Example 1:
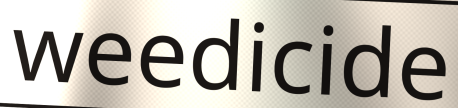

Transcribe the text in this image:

weedicide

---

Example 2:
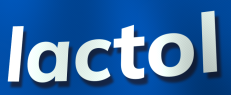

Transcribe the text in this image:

lactol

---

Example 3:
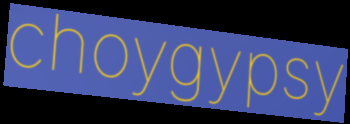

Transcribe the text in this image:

choygypsy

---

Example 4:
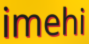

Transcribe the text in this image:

imehi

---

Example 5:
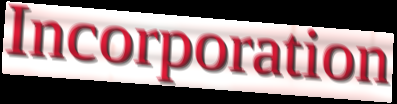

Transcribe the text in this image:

Incorporation